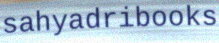
sahyadribooks